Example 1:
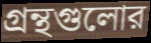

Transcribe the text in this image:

গ্রন্থগুলোর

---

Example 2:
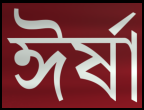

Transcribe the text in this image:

ঈর্ষা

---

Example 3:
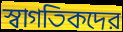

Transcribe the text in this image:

স্বাগতিকদের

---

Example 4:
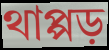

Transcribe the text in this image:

থাপ্পড়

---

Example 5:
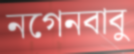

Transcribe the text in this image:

নগেনবাবু